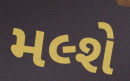
મલ્શે